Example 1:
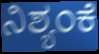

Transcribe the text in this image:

ನಿಶ್ಯಂಕೆ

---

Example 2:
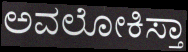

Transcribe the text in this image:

ಅವಲೋಕಿಸ್ತಾ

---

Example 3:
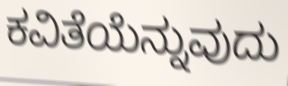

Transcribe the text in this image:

ಕವಿತೆಯೆನ್ನುವುದು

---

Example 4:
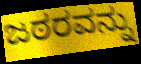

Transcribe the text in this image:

ಜಠರವನ್ನು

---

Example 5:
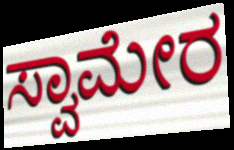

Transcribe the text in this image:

ಸ್ವಾಮೇರ